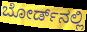
ಬೋರ್ಡ್‌ನಲ್ಲಿ